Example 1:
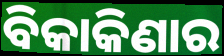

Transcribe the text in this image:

ବିକାକିଣାର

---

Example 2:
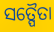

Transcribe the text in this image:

ସତ୍ପୈତା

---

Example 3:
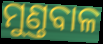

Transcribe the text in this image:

ମୁଣ୍ତବାଳ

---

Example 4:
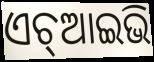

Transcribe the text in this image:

ଏଚ୍ଆଇଭି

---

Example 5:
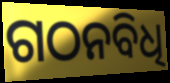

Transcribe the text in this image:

ଗଠନବିଧି